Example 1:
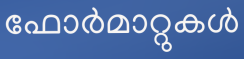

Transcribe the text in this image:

ഫോർമാറ്റുകൾ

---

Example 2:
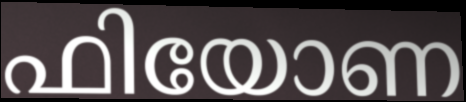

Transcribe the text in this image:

ഫിയോണ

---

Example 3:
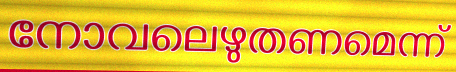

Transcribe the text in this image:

നോവലെഴുതണമെന്ന്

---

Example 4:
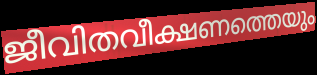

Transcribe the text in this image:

ജീവിതവീക്ഷണത്തെയും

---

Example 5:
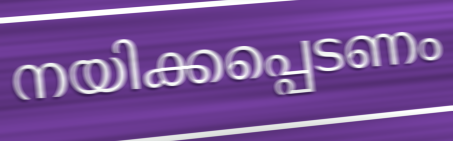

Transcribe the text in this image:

നയിക്കപ്പെടണം